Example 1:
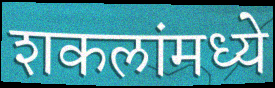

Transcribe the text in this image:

शकलांमध्ये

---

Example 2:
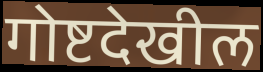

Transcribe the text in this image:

गोष्टदेखील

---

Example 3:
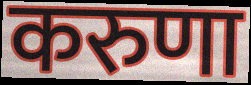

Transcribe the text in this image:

करुणा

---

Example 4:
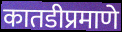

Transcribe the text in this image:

कातडीप्रमाणे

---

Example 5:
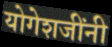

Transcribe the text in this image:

योगेशजींनी